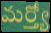
మర్త్యో